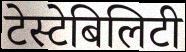
टेस्टेबिलिटी